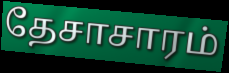
தேசாசாரம்